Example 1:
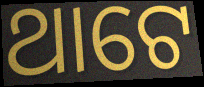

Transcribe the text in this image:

ଥାଟେ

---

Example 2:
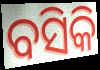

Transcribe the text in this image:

ବସିକି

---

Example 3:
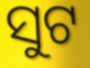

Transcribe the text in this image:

ସୁଟ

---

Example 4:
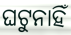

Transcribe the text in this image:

ଘଟୁନାହିଁ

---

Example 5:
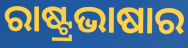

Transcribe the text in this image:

ରାଷ୍ଟ୍ରଭାଷାର